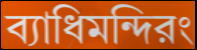
ব্যাধিমন্দিরং